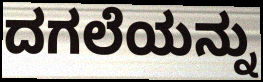
ದಗಲೆಯನ್ನು